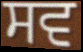
ਸਵ